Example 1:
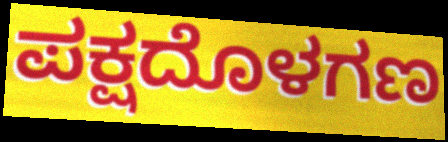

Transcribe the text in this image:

ಪಕ್ಷದೊಳಗಣ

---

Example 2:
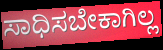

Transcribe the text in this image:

ಸಾಧಿಸಬೇಕಾಗಿಲ್ಲ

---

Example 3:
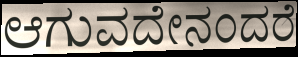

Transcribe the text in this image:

ಆಗುವದೇನಂದರೆ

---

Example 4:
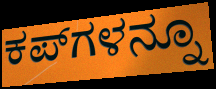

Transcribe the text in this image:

ಕಪ್‌ಗಳನ್ನೂ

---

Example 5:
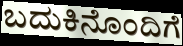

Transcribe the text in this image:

ಬದುಕಿನೊಂದಿಗೆ